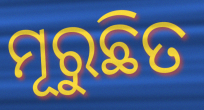
ମୂରୁଛିତ